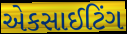
એકસાઈટિંગ